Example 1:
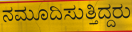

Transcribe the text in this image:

ನಮೂದಿಸುತ್ತಿದ್ದರು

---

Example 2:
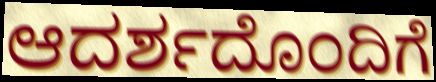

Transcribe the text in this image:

ಆದರ್ಶದೊಂದಿಗೆ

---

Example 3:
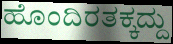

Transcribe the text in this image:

ಹೊಂದಿರತಕ್ಕದ್ದು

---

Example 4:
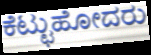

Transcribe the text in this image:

ಕೆಟ್ಟುಹೋದರು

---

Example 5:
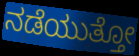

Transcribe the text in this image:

ನಡೆಯುತ್ತೋ